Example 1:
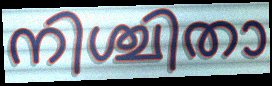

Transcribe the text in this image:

നിശ്ചിതാ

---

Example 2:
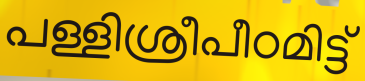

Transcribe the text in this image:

പള്ളിശ്രീപീഠമിട്ട്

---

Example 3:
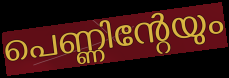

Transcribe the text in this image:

പെണ്ണിന്റേയും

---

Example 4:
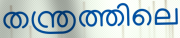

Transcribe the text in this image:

തന്ത്രത്തിലെ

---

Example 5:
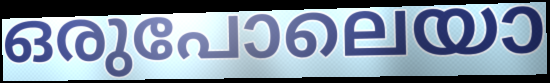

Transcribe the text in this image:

ഒരുപോലെയാ